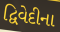
દ્વિવેદીના